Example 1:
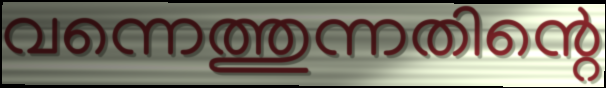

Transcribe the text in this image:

വന്നെത്തുന്നതിന്റെ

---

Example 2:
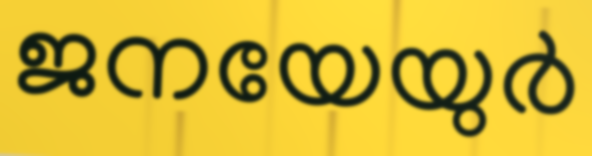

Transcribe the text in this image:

ജനയേയുർ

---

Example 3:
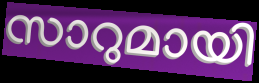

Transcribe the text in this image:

സാറുമായി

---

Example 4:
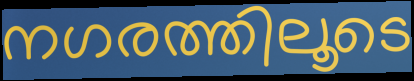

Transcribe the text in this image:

നഗരത്തിലൂടെ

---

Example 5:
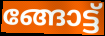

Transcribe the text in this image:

ങ്ങോട്ട്